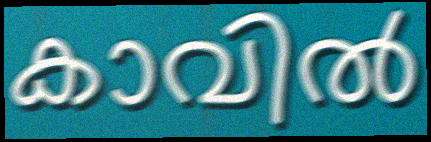
കാവിൽ